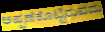
ಅಪ್ಪಣೆಕೊಟ್ಟಿರುವದು